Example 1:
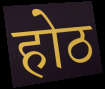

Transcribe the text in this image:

होठ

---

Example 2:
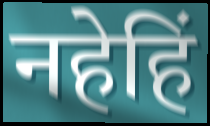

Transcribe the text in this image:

नहेहिं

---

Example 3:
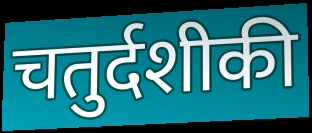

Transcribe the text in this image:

चतुर्दशीकी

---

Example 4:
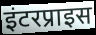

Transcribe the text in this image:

इंटरप्राइस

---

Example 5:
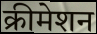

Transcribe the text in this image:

क्रीमेशन